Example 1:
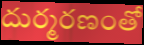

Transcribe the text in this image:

దుర్మరణంతో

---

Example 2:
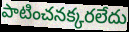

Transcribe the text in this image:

పాటించనక్కరలేదు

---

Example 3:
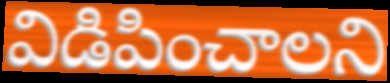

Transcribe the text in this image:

విడిపించాలని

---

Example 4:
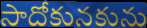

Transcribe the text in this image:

సాదోకునకును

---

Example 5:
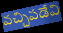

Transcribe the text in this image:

వచ్చిపడేవి